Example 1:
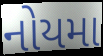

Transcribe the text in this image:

નોયમા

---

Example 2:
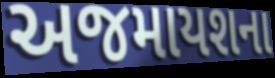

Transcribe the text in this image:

અજમાયશના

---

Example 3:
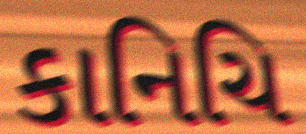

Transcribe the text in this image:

કાનિચિ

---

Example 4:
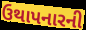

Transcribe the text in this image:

ઉથાપનારની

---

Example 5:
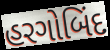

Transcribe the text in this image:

હરગોબિંદ